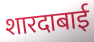
शारदाबाई